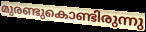
മുരണ്ടുകൊണ്ടിരുന്നു